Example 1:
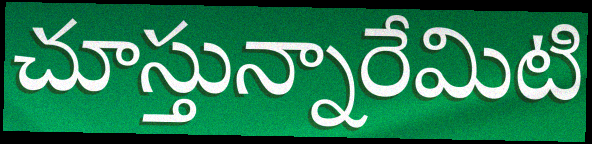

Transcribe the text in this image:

చూస్తున్నారేమిటి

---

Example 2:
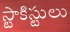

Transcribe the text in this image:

స్టాకిస్టులు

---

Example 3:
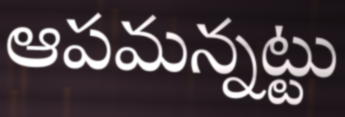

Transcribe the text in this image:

ఆపమన్నట్టు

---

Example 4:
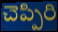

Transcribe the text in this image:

చెప్పిరి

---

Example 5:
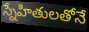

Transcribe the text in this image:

స్నేహితులతోనే